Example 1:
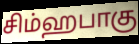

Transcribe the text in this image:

சிம்ஹபாகு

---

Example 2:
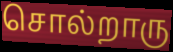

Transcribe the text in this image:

சொல்றாரு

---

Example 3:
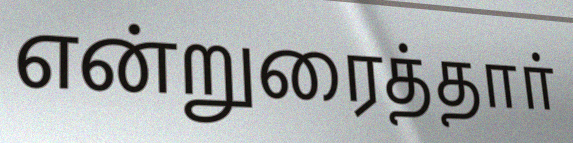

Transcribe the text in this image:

என்றுரைத்தார்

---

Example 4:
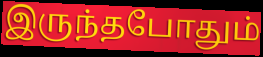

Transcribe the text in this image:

இருந்தபோதும்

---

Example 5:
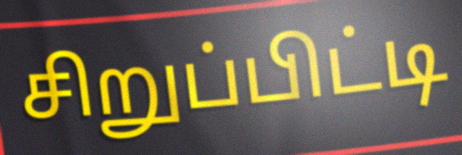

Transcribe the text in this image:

சிறுப்பிட்டி